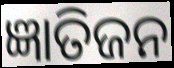
ଜ୍ଞାତିଜନ